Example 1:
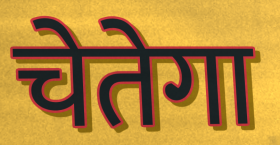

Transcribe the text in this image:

चेतेगा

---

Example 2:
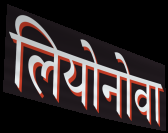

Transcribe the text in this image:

लियोनोवा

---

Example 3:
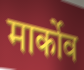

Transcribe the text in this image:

मार्कोव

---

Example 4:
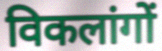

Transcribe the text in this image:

विकलांगों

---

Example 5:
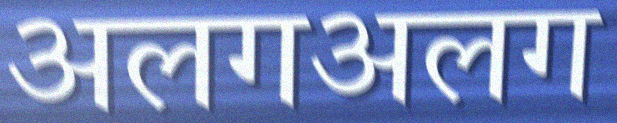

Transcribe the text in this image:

अलगअलग